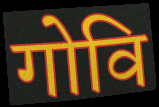
गोवि